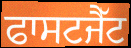
ਫਾਸਟਜੈੱਟ